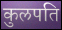
कुलपति